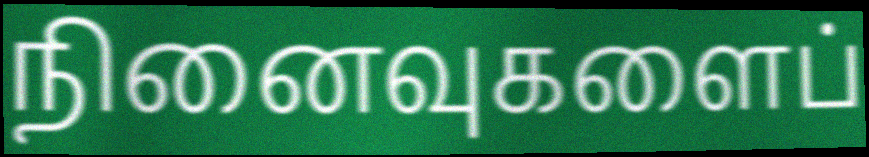
நினைவுகளைப்